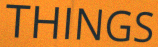
THINGS